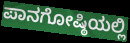
ಪಾನಗೋಷ್ಠಿಯಲ್ಲಿ